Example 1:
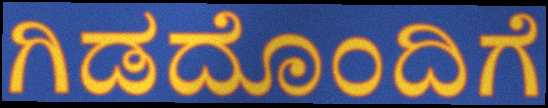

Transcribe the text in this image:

ಗಿಡದೊಂದಿಗೆ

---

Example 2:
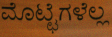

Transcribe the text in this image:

ಮೊಟ್ಟೆಗಳೆಲ್ಲ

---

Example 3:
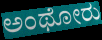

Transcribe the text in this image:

ಅಂಥೋರು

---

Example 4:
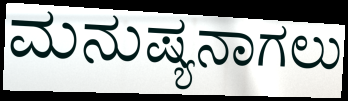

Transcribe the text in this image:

ಮನುಷ್ಯನಾಗಲು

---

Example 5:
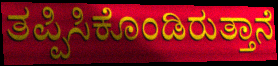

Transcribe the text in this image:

ತಪ್ಪಿಸಿಕೊಂಡಿರುತ್ತಾನೆ